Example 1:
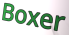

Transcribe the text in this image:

Boxer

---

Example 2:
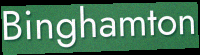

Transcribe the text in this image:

Binghamton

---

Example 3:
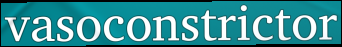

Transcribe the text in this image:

vasoconstrictor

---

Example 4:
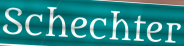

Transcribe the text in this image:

Schechter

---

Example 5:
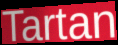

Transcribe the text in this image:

Tartan